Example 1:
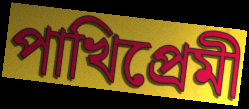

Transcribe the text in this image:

পাখিপ্রেমী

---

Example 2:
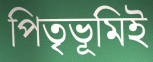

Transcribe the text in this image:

পিতৃভূমিই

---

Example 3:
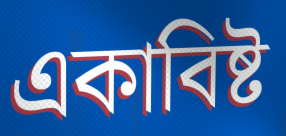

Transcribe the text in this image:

একাবিষ্ট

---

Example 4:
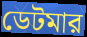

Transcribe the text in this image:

ডেটমার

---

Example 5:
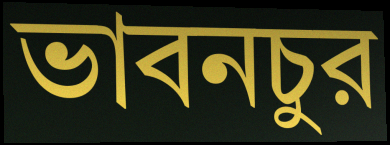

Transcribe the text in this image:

ভাবনচুর